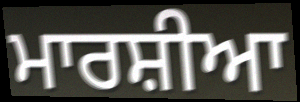
ਮਾਰਸ਼ੀਆ